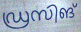
ഡ്രസിങ്